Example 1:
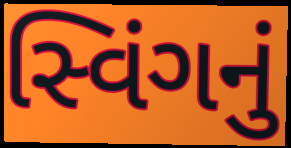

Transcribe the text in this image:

સ્વિંગનું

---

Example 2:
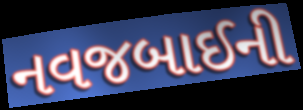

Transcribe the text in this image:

નવજબાઈની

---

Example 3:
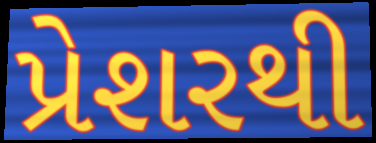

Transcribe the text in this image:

પ્રેશરથી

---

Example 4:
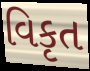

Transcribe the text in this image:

વિકૃત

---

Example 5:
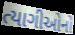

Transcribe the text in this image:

ત્યાગીઓનો